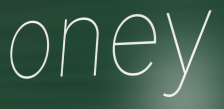
oney